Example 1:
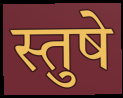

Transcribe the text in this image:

स्तुषे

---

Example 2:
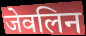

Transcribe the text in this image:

जेवलिन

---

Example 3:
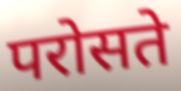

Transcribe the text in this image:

परोसते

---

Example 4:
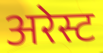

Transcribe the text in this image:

अरेस्ट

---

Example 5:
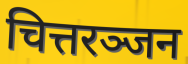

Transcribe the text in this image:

चित्तरञ्जन